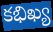
కభిఖ్య